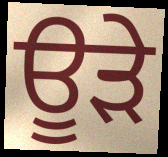
ਊੜੇ